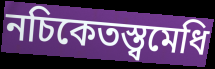
নচিকেতস্ত্বমেধি